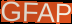
GFAP